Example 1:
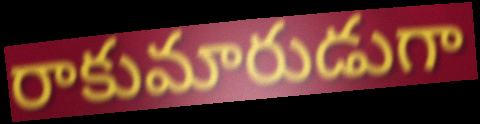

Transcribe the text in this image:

రాకుమారుడుగా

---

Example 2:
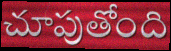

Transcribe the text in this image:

చూపుతోంది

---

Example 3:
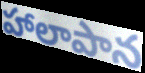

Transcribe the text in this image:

హాలాపాన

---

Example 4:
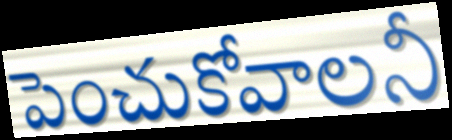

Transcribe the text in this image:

పెంచుకోవాలనీ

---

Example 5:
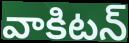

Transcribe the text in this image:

వాకిటన్